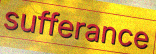
sufferance